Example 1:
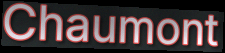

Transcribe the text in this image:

Chaumont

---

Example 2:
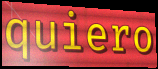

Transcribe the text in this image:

quiero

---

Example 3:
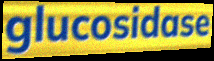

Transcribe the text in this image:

glucosidase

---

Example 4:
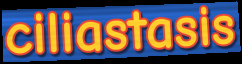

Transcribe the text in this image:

ciliastasis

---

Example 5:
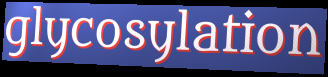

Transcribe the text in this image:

glycosylation